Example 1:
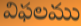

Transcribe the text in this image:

విఫలము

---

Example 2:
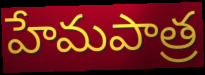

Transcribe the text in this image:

హేమపాత్ర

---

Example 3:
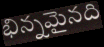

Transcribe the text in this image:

భిన్నమైనది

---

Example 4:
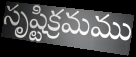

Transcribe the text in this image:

సృష్టిక్రమము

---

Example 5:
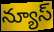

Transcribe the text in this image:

న్యూస్